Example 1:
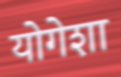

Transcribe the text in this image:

योगेशा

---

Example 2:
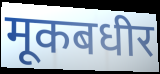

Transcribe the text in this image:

मूकबधीर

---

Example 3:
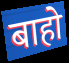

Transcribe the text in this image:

बाहो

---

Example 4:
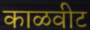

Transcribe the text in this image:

काळवीट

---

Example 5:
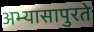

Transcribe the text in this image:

अभ्यासापुरते